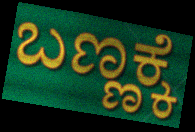
ಬಣ್ಣಕ್ಕೆ